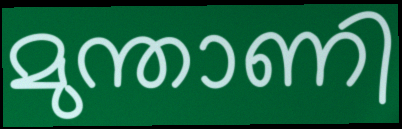
മുന്താണി